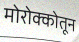
मोरोक्कोतून